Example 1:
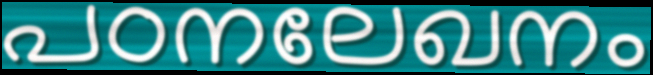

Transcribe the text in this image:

പഠനലേഖനം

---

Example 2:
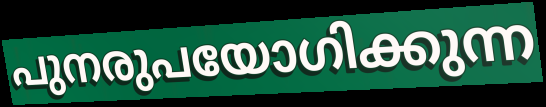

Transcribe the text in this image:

പുനരുപയോഗിക്കുന്ന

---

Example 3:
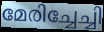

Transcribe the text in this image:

മേരിച്ചേച്ചി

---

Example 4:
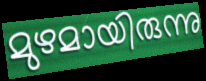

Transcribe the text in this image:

മുഴമായിരുന്നു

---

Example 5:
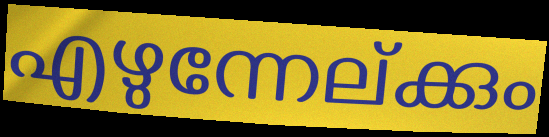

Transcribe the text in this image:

എഴുന്നേല്ക്കും